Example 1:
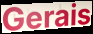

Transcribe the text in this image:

Gerais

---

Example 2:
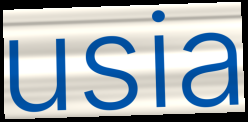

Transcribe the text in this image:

usia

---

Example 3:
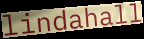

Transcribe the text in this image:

lindahall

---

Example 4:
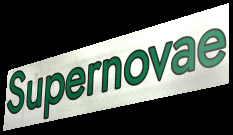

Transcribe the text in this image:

Supernovae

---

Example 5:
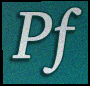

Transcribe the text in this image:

Pf